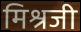
मिश्रजी